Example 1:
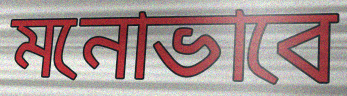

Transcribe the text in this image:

মনোভাবে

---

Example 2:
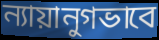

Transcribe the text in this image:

ন্যায়ানুগভাবে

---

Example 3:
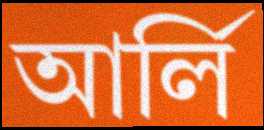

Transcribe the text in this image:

আর্লি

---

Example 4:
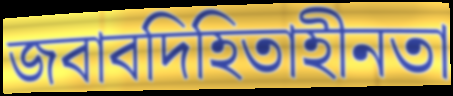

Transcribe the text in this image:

জবাবদিহিতাহীনতা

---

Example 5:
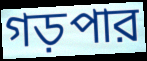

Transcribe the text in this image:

গড়পার